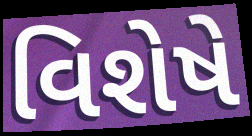
વિશેષે